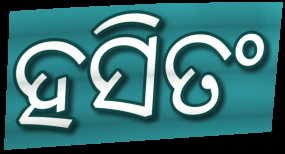
ହସିତଂ